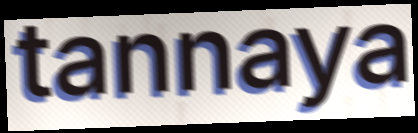
tannaya